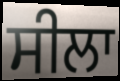
ਸੀਲਾ